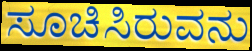
ಸೂಚಿಸಿರುವನು